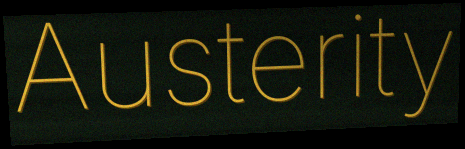
Austerity